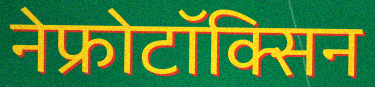
नेफ्रोटॉक्सिन